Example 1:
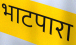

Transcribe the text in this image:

भाटपारा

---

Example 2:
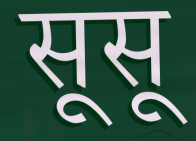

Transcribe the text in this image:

सूसू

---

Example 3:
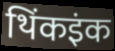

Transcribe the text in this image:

थिंकइंक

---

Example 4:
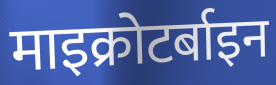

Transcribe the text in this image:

माइक्रोटर्बाइन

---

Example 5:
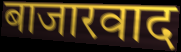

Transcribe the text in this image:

बाजारवाद